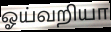
ஓய்வறியா